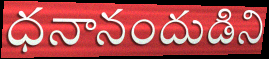
ధనానందుడిని